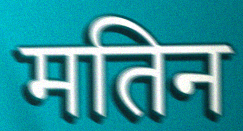
मतिन